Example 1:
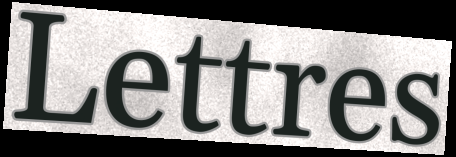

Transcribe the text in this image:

Lettres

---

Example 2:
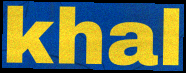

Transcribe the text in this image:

khal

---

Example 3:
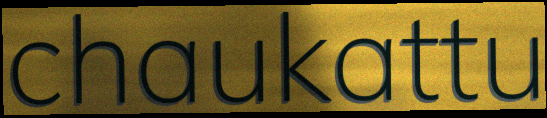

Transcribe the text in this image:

chaukattu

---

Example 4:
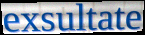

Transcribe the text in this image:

exsultate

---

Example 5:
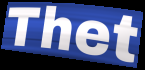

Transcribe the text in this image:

Thet